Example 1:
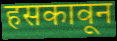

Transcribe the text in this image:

हसकावून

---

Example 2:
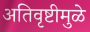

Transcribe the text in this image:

अतिवृष्टीमुळे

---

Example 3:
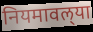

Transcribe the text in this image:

नियमावल्या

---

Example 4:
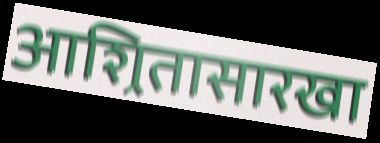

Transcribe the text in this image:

आश्रितासारखा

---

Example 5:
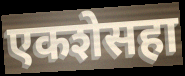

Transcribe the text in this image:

एकशेसहा